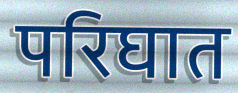
परिघात